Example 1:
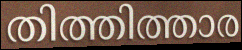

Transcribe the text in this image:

തിത്തിത്താര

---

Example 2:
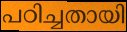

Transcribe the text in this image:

പഠിച്ചതായി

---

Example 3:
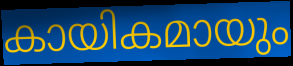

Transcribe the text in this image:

കായികമായും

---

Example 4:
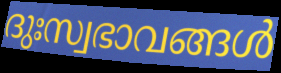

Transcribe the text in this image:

ദുഃസ്വഭാവങ്ങൾ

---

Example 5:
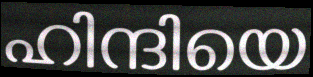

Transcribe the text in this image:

ഹിന്ദിയെ